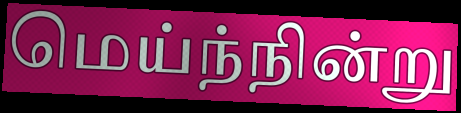
மெய்ந்நின்று